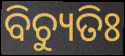
ବିଚ୍ୟୁତିଃ